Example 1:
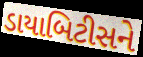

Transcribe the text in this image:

ડાયાબિટીસને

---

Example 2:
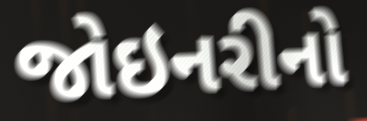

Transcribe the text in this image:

જોઇનરીનો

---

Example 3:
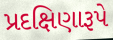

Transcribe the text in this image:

પ્રદક્ષિણારૂપે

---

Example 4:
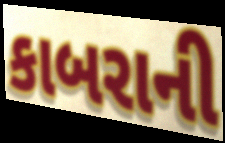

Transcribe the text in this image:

કાબરાની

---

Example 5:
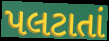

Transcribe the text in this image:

પલટાતાં